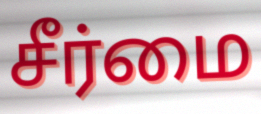
சீர்மை